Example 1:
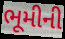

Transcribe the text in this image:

ભૂમીની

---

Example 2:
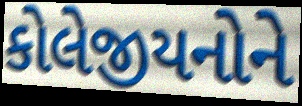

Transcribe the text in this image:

કોલેજીયનોને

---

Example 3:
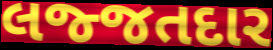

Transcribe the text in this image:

લજ્જતદાર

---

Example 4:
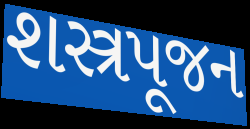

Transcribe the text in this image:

શસ્ત્રપૂજન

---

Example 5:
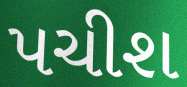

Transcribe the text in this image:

પચીશ